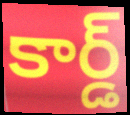
కార్డ్